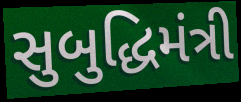
સુબુદ્ધિમંત્રી